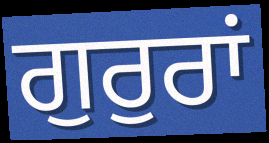
ਗੁਰੁਰਾਂ